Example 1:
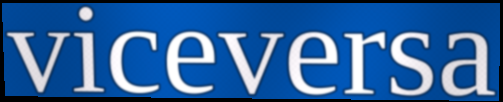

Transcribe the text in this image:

viceversa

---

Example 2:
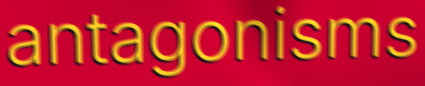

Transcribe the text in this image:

antagonisms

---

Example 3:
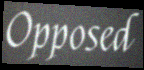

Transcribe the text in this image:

Opposed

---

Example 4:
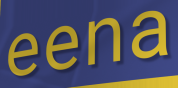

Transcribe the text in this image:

eena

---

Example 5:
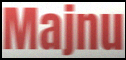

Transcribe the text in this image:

Majnu